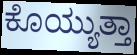
ಕೊಯ್ಯುತ್ತಾ